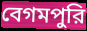
বেগমপুরি